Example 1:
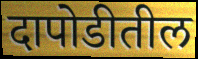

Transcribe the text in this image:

दापोडीतील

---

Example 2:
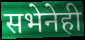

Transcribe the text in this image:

सभेनेही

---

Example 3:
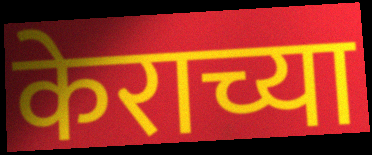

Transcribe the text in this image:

केराच्या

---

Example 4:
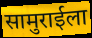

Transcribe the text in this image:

सामुराईला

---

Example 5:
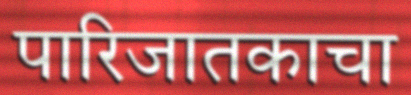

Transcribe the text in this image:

पारिजातकाचा